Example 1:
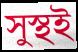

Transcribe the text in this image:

সুস্থই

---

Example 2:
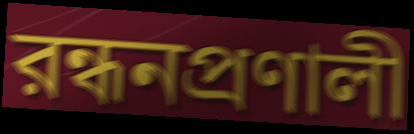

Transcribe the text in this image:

রন্ধনপ্রণালী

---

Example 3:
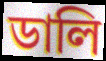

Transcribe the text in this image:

ডালি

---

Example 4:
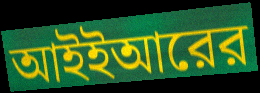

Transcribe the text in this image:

আইইআরের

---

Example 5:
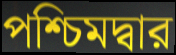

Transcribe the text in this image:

পশ্চিমদ্বার